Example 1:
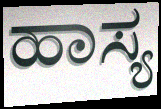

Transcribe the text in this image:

ಹಾಸ್ಯ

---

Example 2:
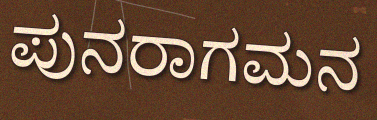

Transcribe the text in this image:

ಪುನರಾಗಮನ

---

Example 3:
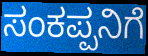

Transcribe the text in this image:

ಸಂಕಪ್ಪನಿಗೆ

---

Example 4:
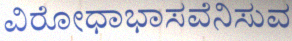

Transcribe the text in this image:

ವಿರೋಧಾಭಾಸವೆನಿಸುವ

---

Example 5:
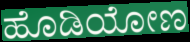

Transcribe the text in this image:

ಹೊಡಿಯೋಣ